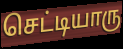
செட்டியாரு